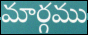
మార్గము